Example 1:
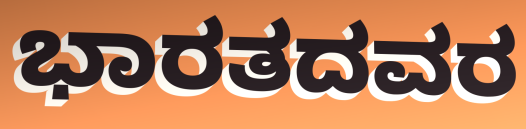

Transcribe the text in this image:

ಭಾರತದವರ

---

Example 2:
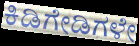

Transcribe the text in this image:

ಕಿಡಿಗೇಡಿಗಳೇ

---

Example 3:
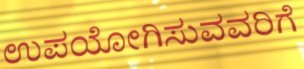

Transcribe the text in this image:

ಉಪಯೋಗಿಸುವವರಿಗೆ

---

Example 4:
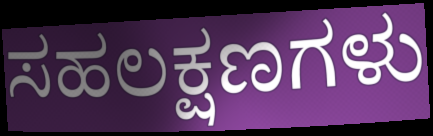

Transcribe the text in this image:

ಸಹಲಕ್ಷಣಗಳು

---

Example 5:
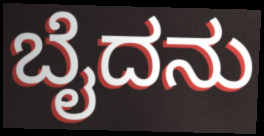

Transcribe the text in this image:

ಬೈದನು